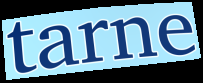
tarne